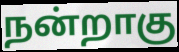
நன்றாகு